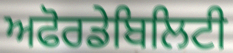
ਅਫੋਰਡੇਬਿਲਿਟੀ